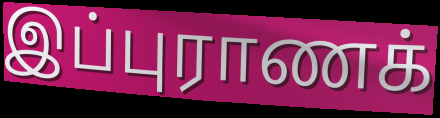
இப்புராணக்